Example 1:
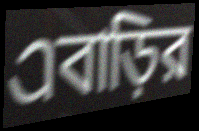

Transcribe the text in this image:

এবাড়ির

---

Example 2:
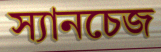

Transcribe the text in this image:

স্যানচেজ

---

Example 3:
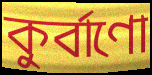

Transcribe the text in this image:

কুর্বাণো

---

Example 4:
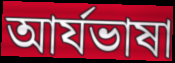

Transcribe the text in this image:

আর্যভাষা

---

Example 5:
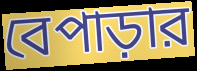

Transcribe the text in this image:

বেপাড়ার